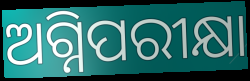
ଅଗ୍ନିପରୀକ୍ଷା